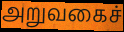
அறுவகைச்